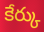
కేర్కు